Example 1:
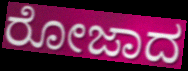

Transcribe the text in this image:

ರೋಜಾದ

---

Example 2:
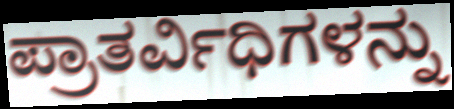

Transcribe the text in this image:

ಪ್ರಾತರ್ವಿಧಿಗಳನ್ನು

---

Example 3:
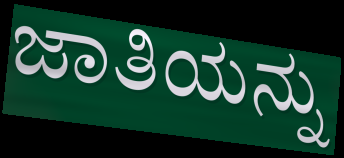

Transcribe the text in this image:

ಜಾತಿಯನ್ನು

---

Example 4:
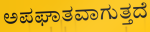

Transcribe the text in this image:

ಅಪಘಾತವಾಗುತ್ತದೆ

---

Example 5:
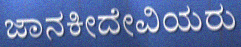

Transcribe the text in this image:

ಜಾನಕೀದೇವಿಯರು